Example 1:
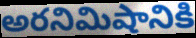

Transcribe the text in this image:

అరనిమిషానికి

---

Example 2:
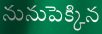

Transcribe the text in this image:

నునుపెక్కిన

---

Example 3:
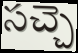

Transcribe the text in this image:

సచ్చె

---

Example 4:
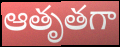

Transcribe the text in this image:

ఆతృతగా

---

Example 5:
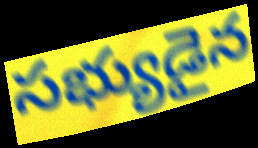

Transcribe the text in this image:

సభ్యుడైన